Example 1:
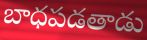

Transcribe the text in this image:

బాధపడతాడు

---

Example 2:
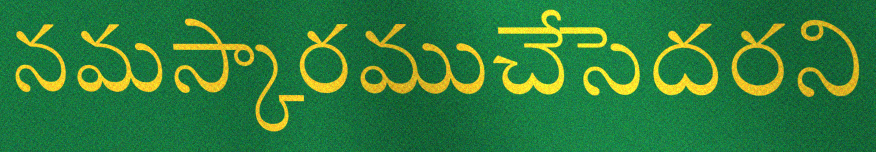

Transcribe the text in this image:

నమస్కారముచేసెదరని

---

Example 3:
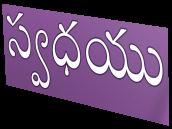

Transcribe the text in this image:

స్వధయు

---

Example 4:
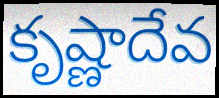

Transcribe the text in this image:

కృష్ణాదేవ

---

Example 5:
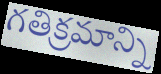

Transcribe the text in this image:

గతిక్రమాన్ని